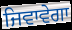
ਜਿਵਾਵੇਗਾ